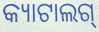
କ୍ୟାଟାଲଗ୍